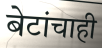
बेटांचाही